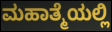
ಮಹಾತ್ಮೆಯಲ್ಲಿ